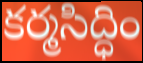
కర్మసిద్ధిం